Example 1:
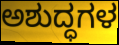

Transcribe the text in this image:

ಅಶುದ್ಧಗಳ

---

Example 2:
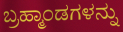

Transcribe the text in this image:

ಬ್ರಹ್ಮಾಂಡಗಳನ್ನು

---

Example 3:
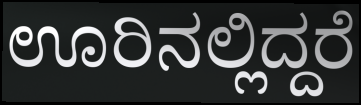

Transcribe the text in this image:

ಊರಿನಲ್ಲಿದ್ದರೆ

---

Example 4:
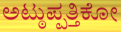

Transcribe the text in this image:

ಅಟ್ಠುಪ್ಪತ್ತಿಕೋ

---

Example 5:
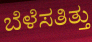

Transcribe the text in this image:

ಬೆಳೆಸತಿತ್ತು